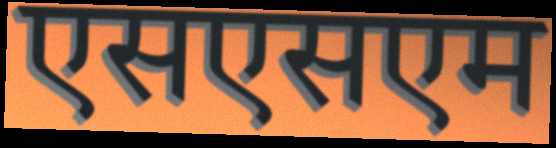
एसएसएम